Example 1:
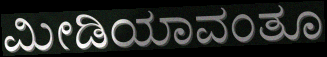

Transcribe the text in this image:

ಮೀಡಿಯಾವಂತೂ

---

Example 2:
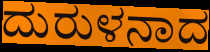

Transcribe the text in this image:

ದುರುಳನಾದ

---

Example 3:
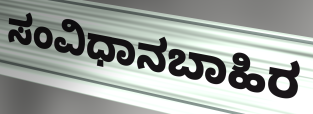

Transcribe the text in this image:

ಸಂವಿಧಾನಬಾಹಿರ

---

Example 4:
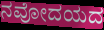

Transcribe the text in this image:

ನವೋದಯದ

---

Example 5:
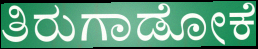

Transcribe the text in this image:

ತಿರುಗಾಡೋಕೆ